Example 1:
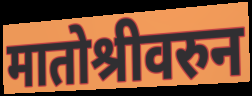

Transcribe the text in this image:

मातोश्रीवरुन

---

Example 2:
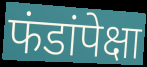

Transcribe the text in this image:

फंडांपेक्षा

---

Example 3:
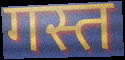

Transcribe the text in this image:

गस्त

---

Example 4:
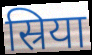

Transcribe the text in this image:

स्रिया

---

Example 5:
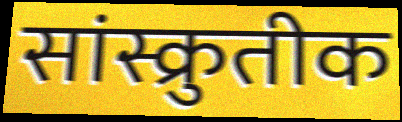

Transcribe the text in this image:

सांस्क्रुतीक